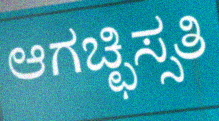
ಆಗಚ್ಛಿಸ್ಸತಿ